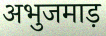
अभुजमाड़